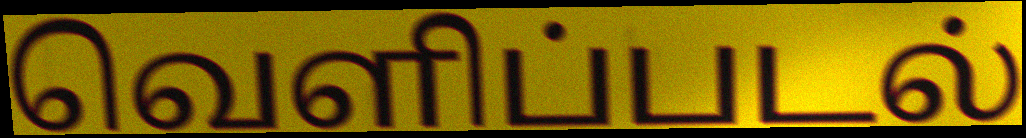
வெளிப்படல்